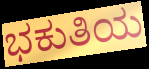
ಭಕುತಿಯ